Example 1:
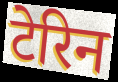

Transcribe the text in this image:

टेरिन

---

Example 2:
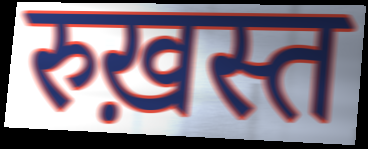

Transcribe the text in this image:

रुख़स्त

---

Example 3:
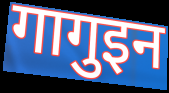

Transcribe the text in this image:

गागुइन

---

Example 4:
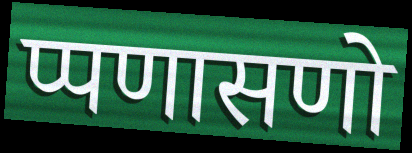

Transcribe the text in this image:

प्पणासणो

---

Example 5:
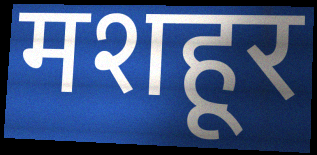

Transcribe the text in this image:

मशहूर